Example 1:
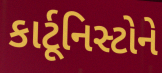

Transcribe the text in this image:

કાર્ટૂનિસ્ટોને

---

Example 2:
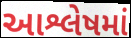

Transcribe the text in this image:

આશ્લેષમાં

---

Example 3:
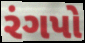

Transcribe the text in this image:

રંગપો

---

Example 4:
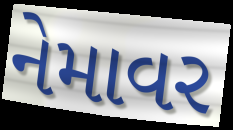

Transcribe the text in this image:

નેમાવર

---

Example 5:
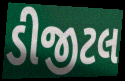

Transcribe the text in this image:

ડીજીટલ